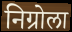
निग्रोला